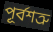
পূর্বশত্রু